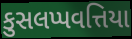
કુસલપ્પવત્તિયા